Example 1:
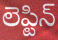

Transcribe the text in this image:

లెప్టిన్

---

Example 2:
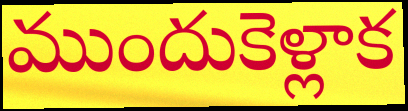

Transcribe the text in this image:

ముందుకెళ్లాక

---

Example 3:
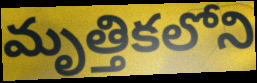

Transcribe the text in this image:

మృత్తికలోని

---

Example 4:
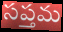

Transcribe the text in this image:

సప్తమ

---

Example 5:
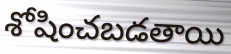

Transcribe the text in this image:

శోషించబడతాయి